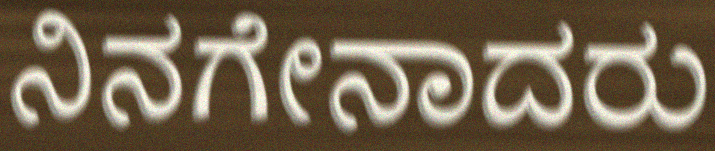
ನಿನಗೇನಾದರು